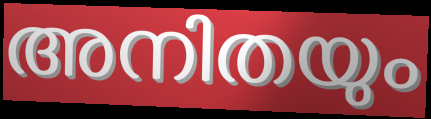
അനിതയും